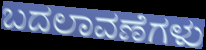
ಬದಲಾವಣೆಗಳು